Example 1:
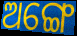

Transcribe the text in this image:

ଅଙ୍ଗେ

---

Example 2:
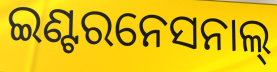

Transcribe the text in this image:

ଇଣ୍ଟରନେସନାଲ୍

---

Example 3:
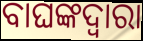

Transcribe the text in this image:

ବାଘଙ୍କଦ୍ୱାରା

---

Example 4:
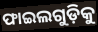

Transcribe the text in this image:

ଫାଇଲଗୁଡ଼ିକୁ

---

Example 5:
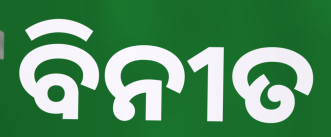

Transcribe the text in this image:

ବିନୀତ